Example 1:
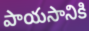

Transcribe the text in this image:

పాయసానికి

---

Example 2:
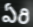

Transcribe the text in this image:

ఏరి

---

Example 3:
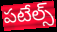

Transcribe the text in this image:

పటేల్స్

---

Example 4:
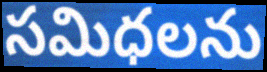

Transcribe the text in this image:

సమిధలను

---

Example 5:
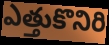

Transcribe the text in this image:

ఎత్తుకొనిరి